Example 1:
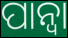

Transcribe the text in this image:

ପାନ୍ଵା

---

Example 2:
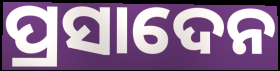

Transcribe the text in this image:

ପ୍ରସାଦେନ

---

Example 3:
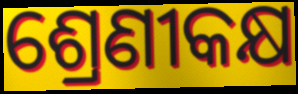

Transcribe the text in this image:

ଶ୍ରେଣୀକକ୍ଷ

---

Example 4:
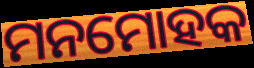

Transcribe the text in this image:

ମନମୋହକ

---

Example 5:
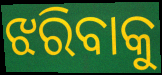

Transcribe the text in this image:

ଝରିବାକୁ